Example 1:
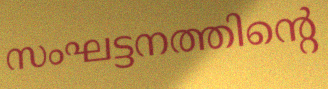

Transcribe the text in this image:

സംഘട്ടനത്തിന്റെ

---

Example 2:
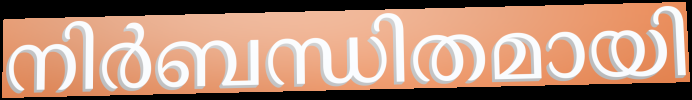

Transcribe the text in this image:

നിർബന്ധിതമായി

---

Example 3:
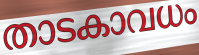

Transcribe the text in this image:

താടകാവധം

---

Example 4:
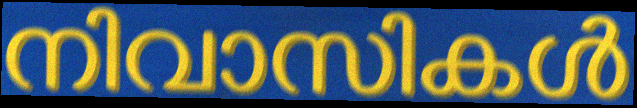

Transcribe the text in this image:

നിവാസികൾ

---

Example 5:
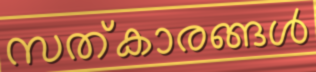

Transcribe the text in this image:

സത്കാരങ്ങൾ